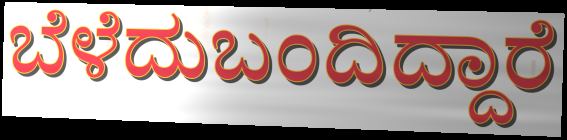
ಬೆಳೆದುಬಂದಿದ್ದಾರೆ